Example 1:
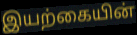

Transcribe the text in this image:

இயற்கையின்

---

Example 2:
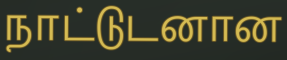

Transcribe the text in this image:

நாட்டுடனான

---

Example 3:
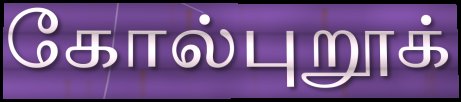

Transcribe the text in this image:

கோல்புறூக்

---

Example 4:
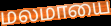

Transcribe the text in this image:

மலமாயை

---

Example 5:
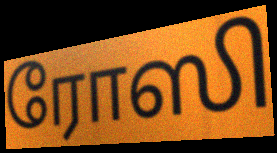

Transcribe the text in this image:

ரோஸி